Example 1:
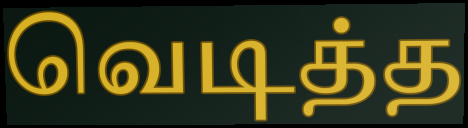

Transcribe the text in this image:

வெடித்த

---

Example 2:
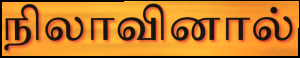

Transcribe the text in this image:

நிலாவினால்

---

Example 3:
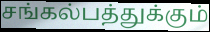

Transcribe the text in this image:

சங்கல்பத்துக்கும்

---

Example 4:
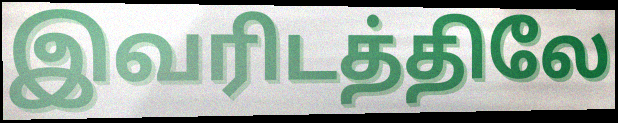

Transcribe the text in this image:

இவரிடத்திலே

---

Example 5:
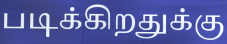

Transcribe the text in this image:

படிக்கிறதுக்கு